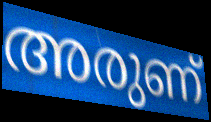
അരുണ്